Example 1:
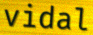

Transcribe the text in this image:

vidal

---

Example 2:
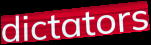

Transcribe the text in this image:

dictators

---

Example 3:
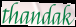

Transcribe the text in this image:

thandak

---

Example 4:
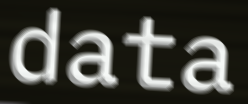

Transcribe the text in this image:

data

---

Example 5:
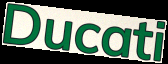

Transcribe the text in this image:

Ducati